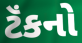
ટૅંકનો